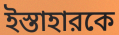
ইস্তাহারকে